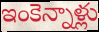
ఇంకెన్నాళ్లు